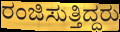
ರಂಜಿಸುತ್ತಿದ್ದರು